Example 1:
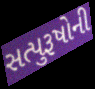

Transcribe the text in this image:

સત્પુરૂષોની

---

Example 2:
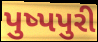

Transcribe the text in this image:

પુષ્પપુરી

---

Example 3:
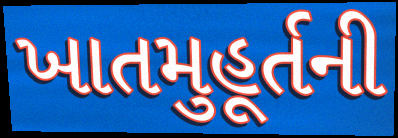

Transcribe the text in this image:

ખાતમુહૂર્તની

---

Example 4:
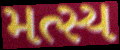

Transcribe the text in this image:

મત્સ્ય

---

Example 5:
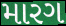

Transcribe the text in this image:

મારગ